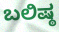
ಬಲಿಷ್ಠ